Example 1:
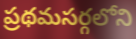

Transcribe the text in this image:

ప్రథమసర్గలోని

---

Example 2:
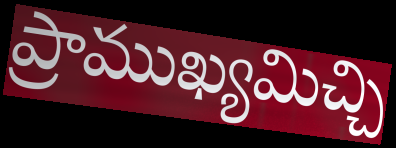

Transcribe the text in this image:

ప్రాముఖ్యమిచ్చి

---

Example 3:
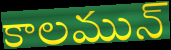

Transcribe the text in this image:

కాలమున్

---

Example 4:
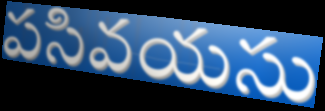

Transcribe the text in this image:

పసివయసు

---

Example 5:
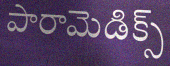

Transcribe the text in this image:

పారామెడిక్స్